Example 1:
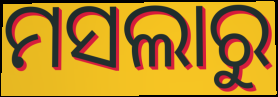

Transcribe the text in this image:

ମସଲାରୁ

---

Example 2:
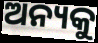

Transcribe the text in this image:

ଅନ୍ୟକୁ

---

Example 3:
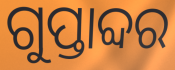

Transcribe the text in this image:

ଗୁପ୍ତାବ୍ଦର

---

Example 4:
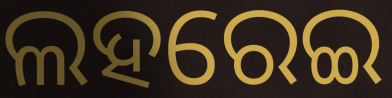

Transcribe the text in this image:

ଲହରେଇ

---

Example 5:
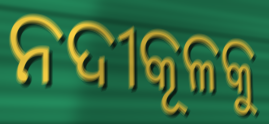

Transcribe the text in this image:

ନଦୀକୂଳକୁ